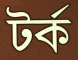
টর্ক